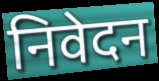
निवेदन